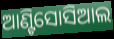
ଆଣ୍ଟିସୋସିଆଲ